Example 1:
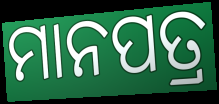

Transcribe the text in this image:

ମାନପତ୍ର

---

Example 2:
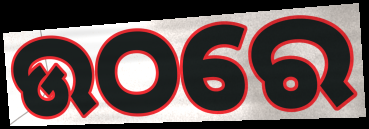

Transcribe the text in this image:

ଉଠରେ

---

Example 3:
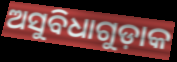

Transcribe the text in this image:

ଅସୁବିଧାଗୁଡ଼ାକ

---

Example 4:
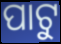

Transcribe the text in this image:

ପାଟୁ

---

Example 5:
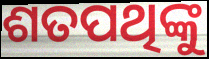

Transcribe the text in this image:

ଶତପଥିଙ୍କୁ